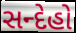
સન્દેહો